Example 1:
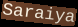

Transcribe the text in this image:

Saraiya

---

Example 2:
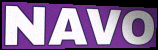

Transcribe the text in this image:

NAVO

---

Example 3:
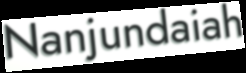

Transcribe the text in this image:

Nanjundaiah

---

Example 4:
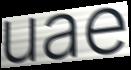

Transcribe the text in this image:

uae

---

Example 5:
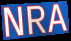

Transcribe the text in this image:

NRA